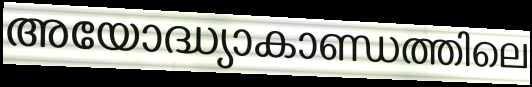
അയോദ്ധ്യാകാണ്ഡത്തിലെ